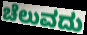
ಚೆಲುವದು